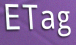
ETag